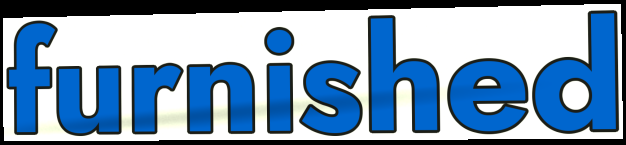
furnished